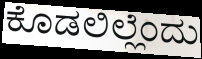
ಕೊಡಲಿಲ್ಲೆಂದು